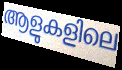
ആളുകളിലെ